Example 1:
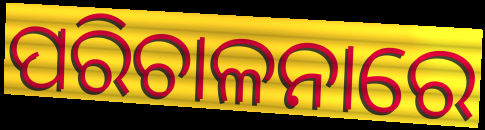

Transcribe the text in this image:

ପରିଚାଳନାରେ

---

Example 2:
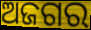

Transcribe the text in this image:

ଅଜଗର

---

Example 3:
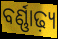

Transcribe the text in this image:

ବର୍ଣ୍ଣାଢ଼୍ୟ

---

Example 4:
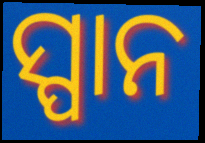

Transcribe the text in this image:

ସ୍ପାନ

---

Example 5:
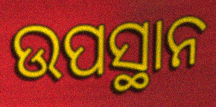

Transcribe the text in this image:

ଉପସ୍ଥାନ